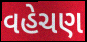
વહેચણ